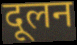
दूलन